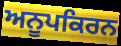
ਅਨੂਪਕਿਰਨ